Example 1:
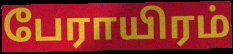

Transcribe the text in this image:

பேராயிரம்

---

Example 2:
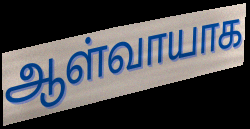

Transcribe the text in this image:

ஆள்வாயாக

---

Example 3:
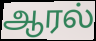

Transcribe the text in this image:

ஆரல்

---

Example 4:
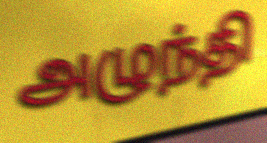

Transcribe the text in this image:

அழுந்தி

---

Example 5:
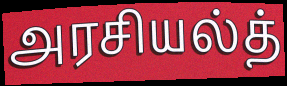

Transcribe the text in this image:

அரசியல்த்